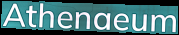
Athenaeum